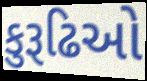
કુરૂઢિઓ